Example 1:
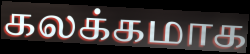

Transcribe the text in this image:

கலக்கமாக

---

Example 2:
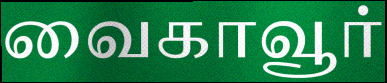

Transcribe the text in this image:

வைகாவூர்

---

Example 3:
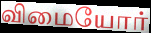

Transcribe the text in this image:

விமையோர்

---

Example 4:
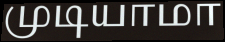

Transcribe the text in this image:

முடியாமா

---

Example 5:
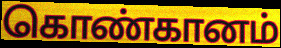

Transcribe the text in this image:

கொண்கானம்